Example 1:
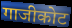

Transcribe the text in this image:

गाजीकोट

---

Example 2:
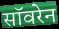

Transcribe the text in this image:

सॉवरेन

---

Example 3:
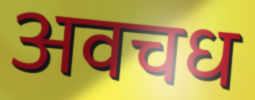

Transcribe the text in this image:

अवचध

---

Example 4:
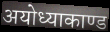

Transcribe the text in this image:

अयोध्याकाण्ड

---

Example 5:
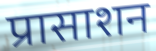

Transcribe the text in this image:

प्रासाशन